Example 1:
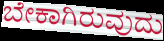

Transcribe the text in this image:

ಬೇಕಾಗಿರುವುದು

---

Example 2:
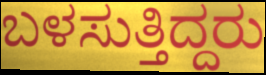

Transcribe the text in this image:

ಬಳಸುತ್ತಿದ್ದರು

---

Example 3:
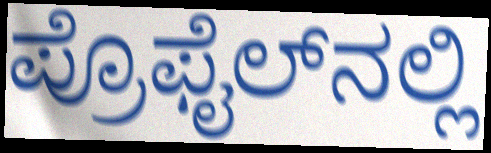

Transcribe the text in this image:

ಪ್ರೊಫೈಲ್‌ನಲ್ಲಿ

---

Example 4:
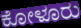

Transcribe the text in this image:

ಕೋಳೂರು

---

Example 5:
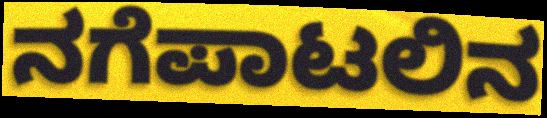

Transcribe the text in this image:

ನಗೆಪಾಟಲಿನ